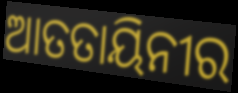
ଆତତାୟିନୀର